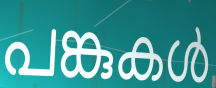
പങ്കുകൾ